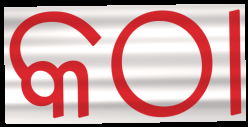
କଠା